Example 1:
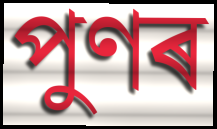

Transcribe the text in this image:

পুণৰ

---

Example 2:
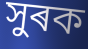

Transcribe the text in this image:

সুৰক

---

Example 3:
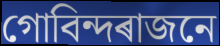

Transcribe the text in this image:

গোবিন্দৰাজনে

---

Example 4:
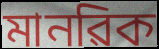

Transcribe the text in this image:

মানৱিক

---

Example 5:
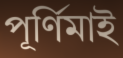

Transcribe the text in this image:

পূৰ্ণিমাই